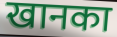
खानका